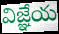
విజ్ఞేయ